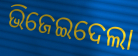
ଭିଜେଇଦେଲା